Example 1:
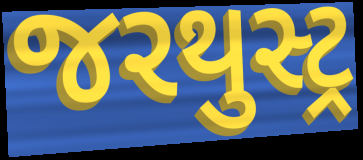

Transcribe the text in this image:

જરથુસ્ટ્ર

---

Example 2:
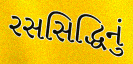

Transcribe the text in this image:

રસસિદ્ધિનું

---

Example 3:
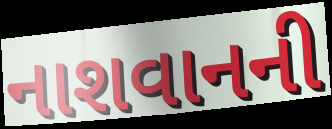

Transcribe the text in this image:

નાશવાનની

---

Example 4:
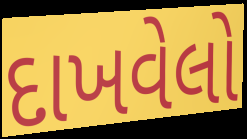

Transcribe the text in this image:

દાખવેલો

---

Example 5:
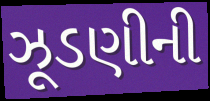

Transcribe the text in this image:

ઝૂડણીની